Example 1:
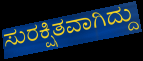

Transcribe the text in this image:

ಸುರಕ್ಷಿತವಾಗಿದ್ದು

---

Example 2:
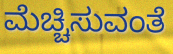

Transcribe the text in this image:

ಮೆಚ್ಚಿಸುವಂತೆ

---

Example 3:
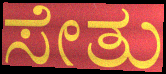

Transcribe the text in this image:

ಸೇತು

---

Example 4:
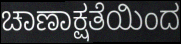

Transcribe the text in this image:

ಚಾಣಾಕ್ಷತೆಯಿಂದ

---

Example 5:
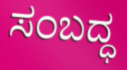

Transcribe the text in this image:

ಸಂಬದ್ಧ